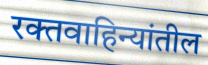
रक्तवाहिन्यांतील